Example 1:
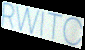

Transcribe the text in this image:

RWITC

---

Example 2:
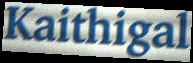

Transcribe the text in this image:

Kaithigal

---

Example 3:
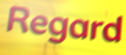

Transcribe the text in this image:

Regard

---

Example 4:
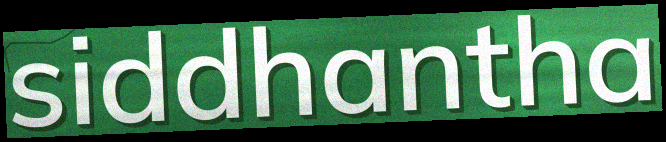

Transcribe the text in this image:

siddhantha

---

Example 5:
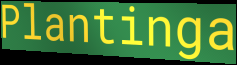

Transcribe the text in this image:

Plantinga